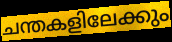
ചന്തകളിലേക്കും